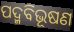
ପଦ୍ମବିଭୂଷଣ